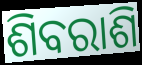
ଶିବରାଶି